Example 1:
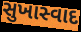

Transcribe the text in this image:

સુખાસ્વાદ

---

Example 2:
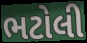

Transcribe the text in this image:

ભટોલી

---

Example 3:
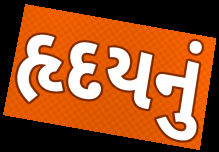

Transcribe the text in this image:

હૃદયનું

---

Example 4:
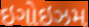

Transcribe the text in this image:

ઇગોઇઝમ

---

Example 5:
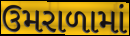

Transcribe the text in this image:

ઉમરાળામાં